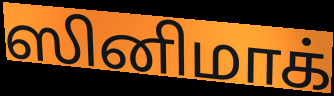
ஸினிமாக்